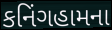
કનિંગહામના